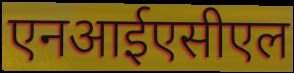
एनआईएसीएल